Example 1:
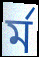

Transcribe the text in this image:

র্ম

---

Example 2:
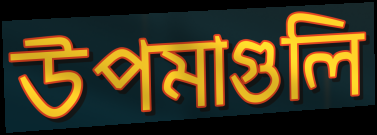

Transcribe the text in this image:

উপমাগুলি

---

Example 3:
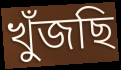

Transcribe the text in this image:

খুঁজছি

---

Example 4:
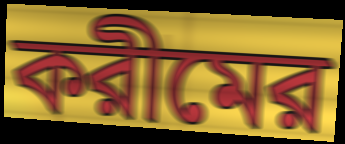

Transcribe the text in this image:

করীমের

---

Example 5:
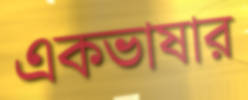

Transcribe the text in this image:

একভাষার